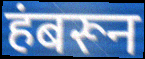
हंबरून